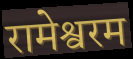
रामेश्वरम